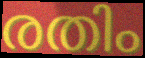
രതിം